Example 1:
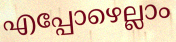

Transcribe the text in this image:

എപ്പോഴെല്ലാം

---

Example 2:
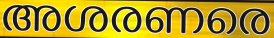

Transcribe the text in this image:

അശരണരെ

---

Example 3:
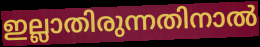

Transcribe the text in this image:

ഇല്ലാതിരുന്നതിനാൽ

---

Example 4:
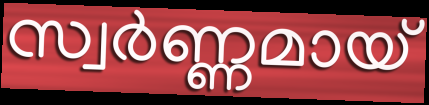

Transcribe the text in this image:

സ്വർണ്ണമായ്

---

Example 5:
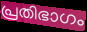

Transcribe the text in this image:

പ്രതിഭാഗം